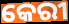
କେରୀ